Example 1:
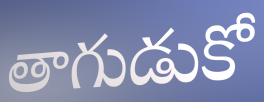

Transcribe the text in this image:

తాగుడుకో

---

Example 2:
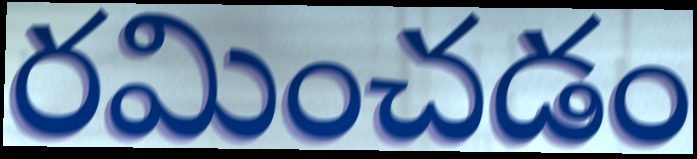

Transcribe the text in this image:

రమించడం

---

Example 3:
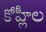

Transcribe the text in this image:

కోహ్లీల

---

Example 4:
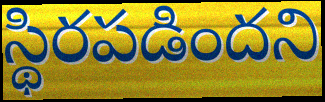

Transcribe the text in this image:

స్థిరపడిందని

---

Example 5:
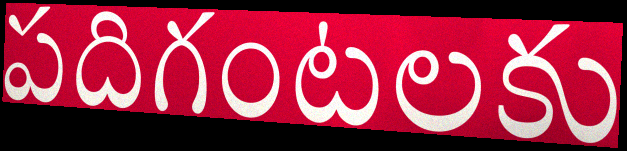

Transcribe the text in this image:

పదిగంటలకు